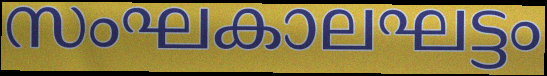
സംഘകാലഘട്ടം